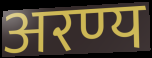
अरण्य